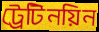
ট্রেটিনয়িন